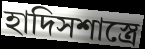
হাদিসশাস্ত্রে